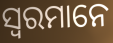
ସ୍ୱରମାନେ